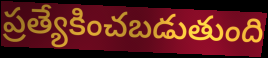
ప్రత్యేకించబడుతుంది